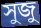
সুজু